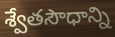
శ్వేతసౌధాన్ని